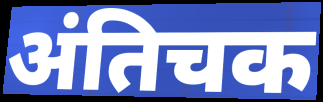
अंतिचक